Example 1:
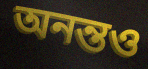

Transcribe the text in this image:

অনন্তও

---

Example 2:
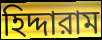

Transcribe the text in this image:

হিদ্দারাম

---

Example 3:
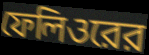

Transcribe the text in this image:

ফেলিওরের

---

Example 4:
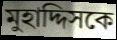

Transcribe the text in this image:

মুহাদ্দিসকে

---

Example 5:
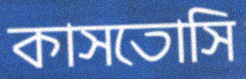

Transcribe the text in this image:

কাসতোসি